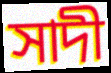
সাদী